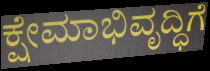
ಕ್ಷೇಮಾಭಿವೃದ್ಧಿಗೆ